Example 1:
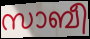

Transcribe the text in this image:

സാബീ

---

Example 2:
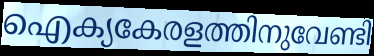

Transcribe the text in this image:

ഐക്യകേരളത്തിനുവേണ്ടി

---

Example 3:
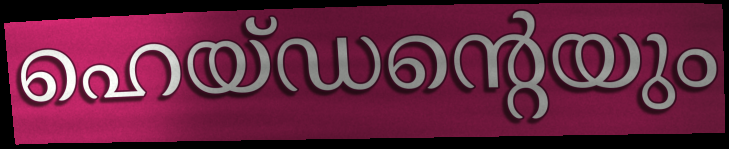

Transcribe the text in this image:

ഹെയ്ഡന്റെയും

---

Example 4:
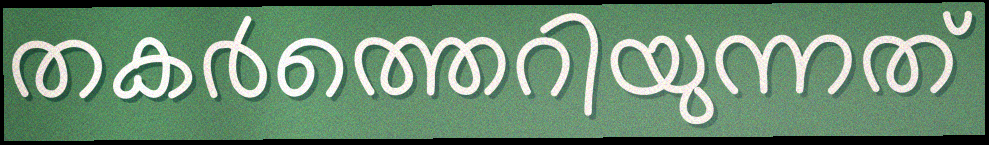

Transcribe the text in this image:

തകർത്തെറിയുന്നത്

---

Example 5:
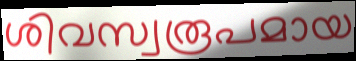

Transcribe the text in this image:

ശിവസ്വരൂപമായ